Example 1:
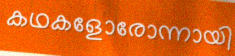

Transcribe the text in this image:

കഥകളോരോന്നായി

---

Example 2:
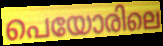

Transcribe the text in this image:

പെയോരിലെ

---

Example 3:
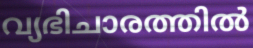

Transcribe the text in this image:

വ്യഭിചാരത്തിൽ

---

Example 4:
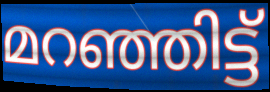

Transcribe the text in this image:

മറഞ്ഞിട്ട്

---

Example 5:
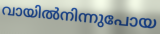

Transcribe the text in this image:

വായിൽനിന്നുപോയ